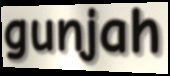
gunjah